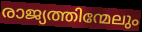
രാജ്യത്തിന്മേലും